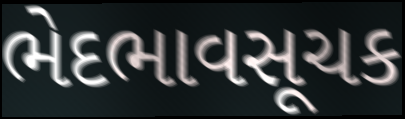
ભેદભાવસૂચક